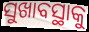
ସୁଖାବସ୍ଥାକୁ